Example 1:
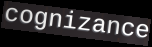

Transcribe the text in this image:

cognizance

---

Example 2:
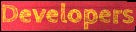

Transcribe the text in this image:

Developers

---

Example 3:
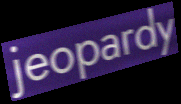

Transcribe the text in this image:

jeopardy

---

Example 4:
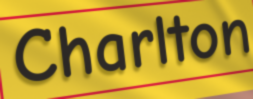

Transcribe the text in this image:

Charlton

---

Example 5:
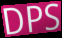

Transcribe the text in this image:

DPS